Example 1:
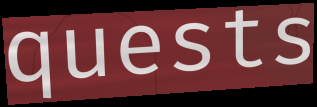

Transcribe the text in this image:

quests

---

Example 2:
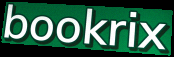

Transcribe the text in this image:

bookrix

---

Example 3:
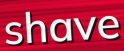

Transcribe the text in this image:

shave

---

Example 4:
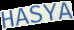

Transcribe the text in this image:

HASYA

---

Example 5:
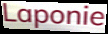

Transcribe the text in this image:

Laponie